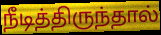
நீடித்திருந்தால்